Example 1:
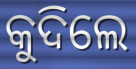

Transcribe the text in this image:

କୁଦିଲେ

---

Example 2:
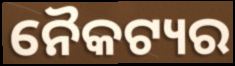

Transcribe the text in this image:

ନୈକଟ୍ୟର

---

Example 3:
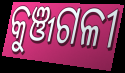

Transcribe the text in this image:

କୁଞ୍ଜଗଳୀ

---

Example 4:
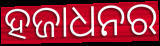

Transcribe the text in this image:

ହଜାଧନର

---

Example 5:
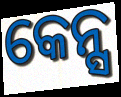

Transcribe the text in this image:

କେନ୍ସ